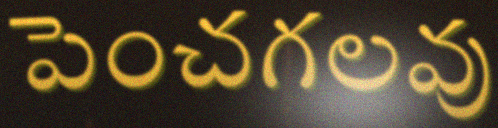
పెంచగలవు